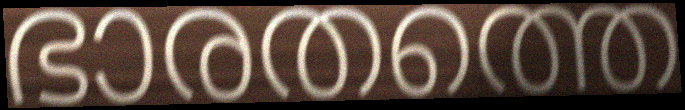
ഭാരതത്തെ